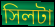
সিলটা